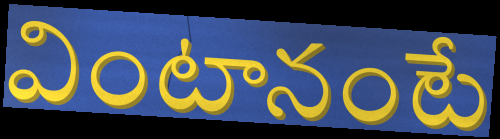
వింటానంటే